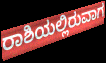
ರಾಶಿಯಲ್ಲಿರುವಾಗ